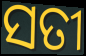
ସତୀ